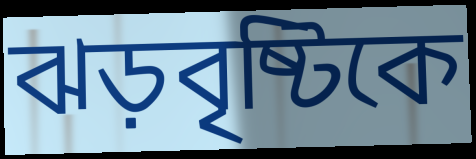
ঝড়বৃষ্টিকে